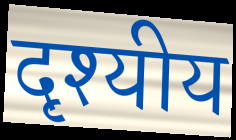
दृश्यीय